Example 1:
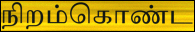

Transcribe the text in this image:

நிறம்கொண்ட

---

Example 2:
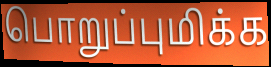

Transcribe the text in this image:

பொறுப்புமிக்க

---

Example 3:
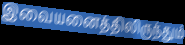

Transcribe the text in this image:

இவையனைத்திலிருந்தும்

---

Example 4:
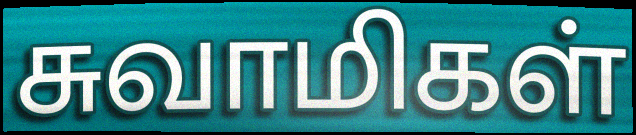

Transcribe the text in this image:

சுவாமிகள்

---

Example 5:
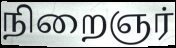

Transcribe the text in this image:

நிறைஞர்